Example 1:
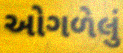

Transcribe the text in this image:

ઓગળેલું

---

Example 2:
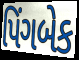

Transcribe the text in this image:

પિંગબેક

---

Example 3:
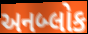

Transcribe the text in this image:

અનબ્લોક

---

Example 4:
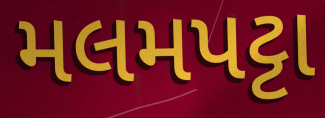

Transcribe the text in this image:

મલમપટ્ટા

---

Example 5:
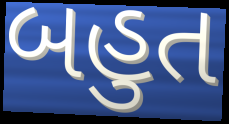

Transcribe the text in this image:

બહુત